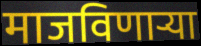
माजविणाऱ्या